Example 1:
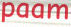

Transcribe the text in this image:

paam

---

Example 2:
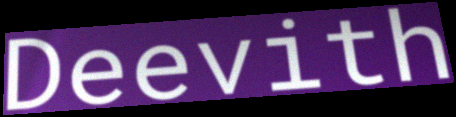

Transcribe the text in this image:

Deevith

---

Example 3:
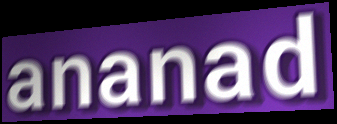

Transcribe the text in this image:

ananad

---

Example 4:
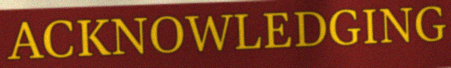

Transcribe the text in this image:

ACKNOWLEDGING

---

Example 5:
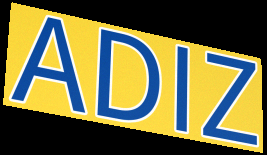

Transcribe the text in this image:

ADIZ